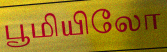
பூமியிலோ